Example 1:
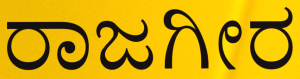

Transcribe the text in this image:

ರಾಜಗೀರ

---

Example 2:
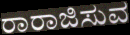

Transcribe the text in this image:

ರಾರಾಜಿಸುವ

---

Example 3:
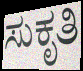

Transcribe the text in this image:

ಸುಕೃತಿ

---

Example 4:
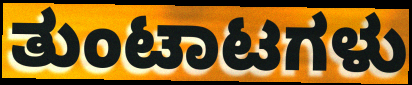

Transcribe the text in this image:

ತುಂಟಾಟಗಳು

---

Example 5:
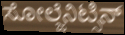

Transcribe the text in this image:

ಸೋಲ್ಜೆನಿಟ್ಸಿನ್